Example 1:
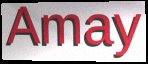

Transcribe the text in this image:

Amay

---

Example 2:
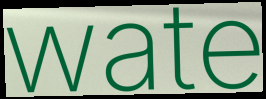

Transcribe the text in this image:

wate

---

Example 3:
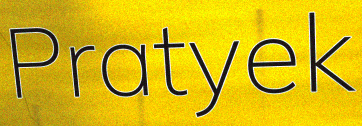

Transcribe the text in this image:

Pratyek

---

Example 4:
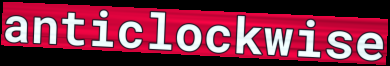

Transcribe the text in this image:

anticlockwise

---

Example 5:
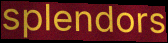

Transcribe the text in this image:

splendors